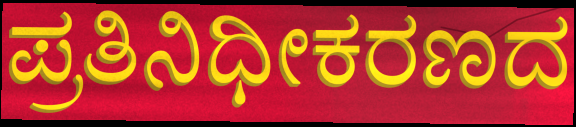
ಪ್ರತಿನಿಧೀಕರಣದ